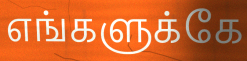
எங்களுக்கே